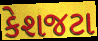
કેશજટા